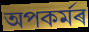
অপকৰ্মৰ